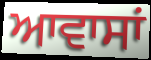
ਆਵਾਸਾਂ